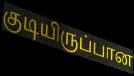
குடியிருப்பான